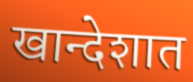
खान्देशात